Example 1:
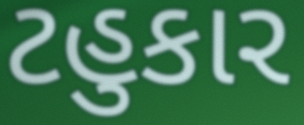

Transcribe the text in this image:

ટહુકાર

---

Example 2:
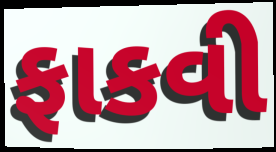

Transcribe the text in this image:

ફાકવી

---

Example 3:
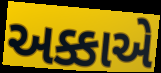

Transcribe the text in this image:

અક્કાએ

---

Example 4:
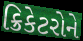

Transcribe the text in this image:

ક્રિકેટરોને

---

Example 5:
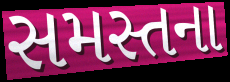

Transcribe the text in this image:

સમસ્તના